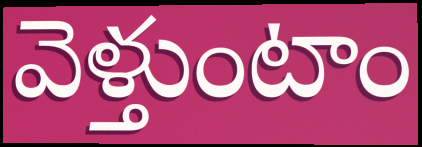
వెళ్తుంటాం